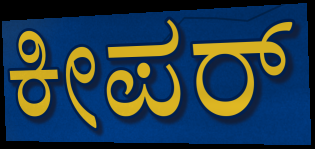
ಕೀಪರ್